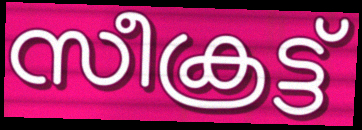
സീക്രട്ട്